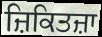
ਜ਼ਿਕਿਤਜ਼ਾ